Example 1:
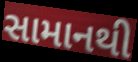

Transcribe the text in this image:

સામાનથી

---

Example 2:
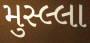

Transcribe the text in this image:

મુસ્લ્લા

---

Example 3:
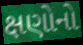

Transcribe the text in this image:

ક્ષણોનો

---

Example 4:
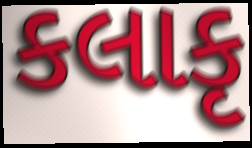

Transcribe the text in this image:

કલાકૃ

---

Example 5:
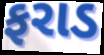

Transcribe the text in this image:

ફરાડ